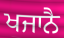
ਖਜਾਨੈ